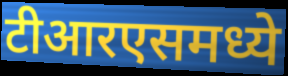
टीआरएसमध्ये